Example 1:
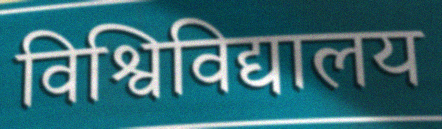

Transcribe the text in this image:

विश्विविद्यालय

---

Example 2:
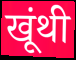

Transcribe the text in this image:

खूंथी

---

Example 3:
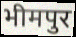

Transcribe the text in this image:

भीमपुर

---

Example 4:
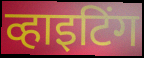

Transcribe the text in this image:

व्हाइटिंग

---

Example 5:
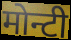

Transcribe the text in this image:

मोन्टी